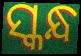
ସ୍କନ୍ଧ